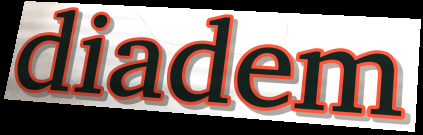
diadem